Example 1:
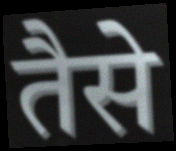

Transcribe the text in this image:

तैसे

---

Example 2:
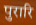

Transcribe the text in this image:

पुरारि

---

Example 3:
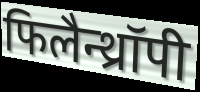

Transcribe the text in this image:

फिलैन्थ्रॉपी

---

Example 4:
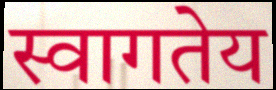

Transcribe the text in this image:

स्वागतेय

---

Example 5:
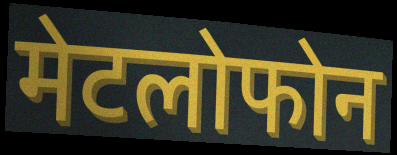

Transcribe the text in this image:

मेटलोफोन